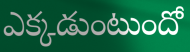
ఎక్కడుంటుందో